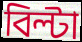
বিল্টা